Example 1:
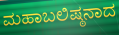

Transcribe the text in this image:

ಮಹಾಬಲಿಷ್ಠನಾದ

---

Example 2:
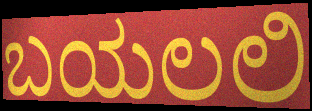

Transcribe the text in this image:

ಬಯಲಲಿ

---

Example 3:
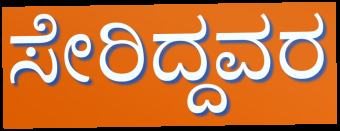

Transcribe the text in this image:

ಸೇರಿದ್ದವರ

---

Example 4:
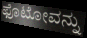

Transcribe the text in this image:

ಫೊಟೋವನ್ನು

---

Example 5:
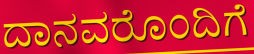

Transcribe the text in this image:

ದಾನವರೊಂದಿಗೆ